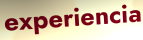
experiencia